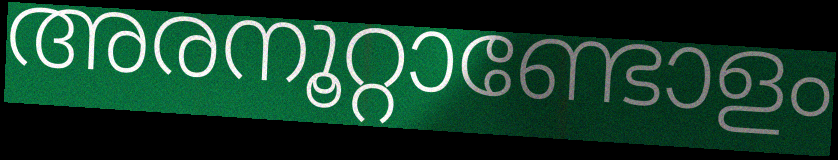
അരനൂറ്റാണ്ടോളം